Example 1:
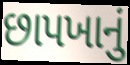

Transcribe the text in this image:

છાપખાનું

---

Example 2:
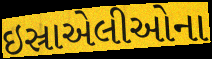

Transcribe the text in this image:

ઇસ્રાએલીઓના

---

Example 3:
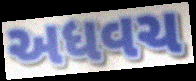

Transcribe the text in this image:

અધવચ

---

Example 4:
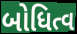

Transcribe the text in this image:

બોધિત્વ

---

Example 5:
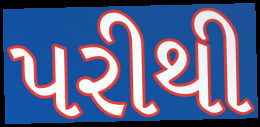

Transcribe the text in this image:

પરીથી